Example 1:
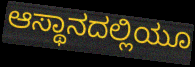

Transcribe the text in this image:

ಆಸ್ಥಾನದಲ್ಲಿಯೂ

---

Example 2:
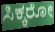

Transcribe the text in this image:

ಸಿಕ್ಕರೋ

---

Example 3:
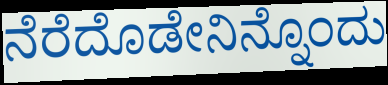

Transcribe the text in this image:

ನೆರೆದೊಡೇನಿನ್ನೊಂದು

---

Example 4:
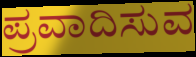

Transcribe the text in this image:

ಪ್ರವಾದಿಸುವ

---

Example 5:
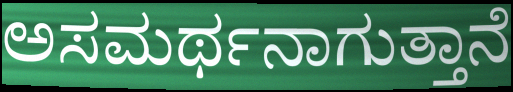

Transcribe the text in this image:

ಅಸಮರ್ಥನಾಗುತ್ತಾನೆ